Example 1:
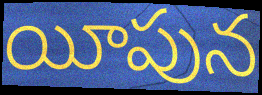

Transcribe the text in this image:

యీపున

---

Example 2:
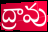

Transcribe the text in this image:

ద్రావు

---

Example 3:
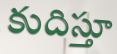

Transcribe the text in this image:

కుదిస్తూ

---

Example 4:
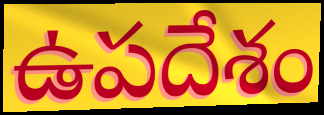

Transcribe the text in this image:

ఉపదేశం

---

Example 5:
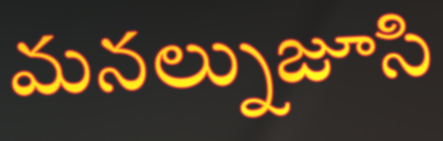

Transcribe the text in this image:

మనల్నుజూసి